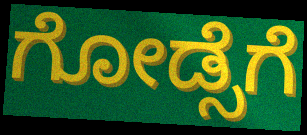
ಗೋಡ್ಸೆಗೆ